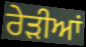
ਰੇੜੀਆਂ